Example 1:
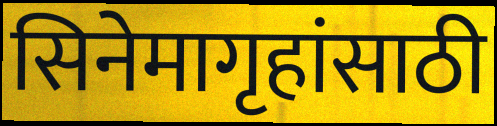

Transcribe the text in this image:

सिनेमागृहांसाठी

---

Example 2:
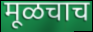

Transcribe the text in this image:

मूळचाच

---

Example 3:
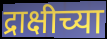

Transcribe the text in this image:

द्राक्षीच्या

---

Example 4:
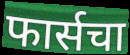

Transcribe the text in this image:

फार्सचा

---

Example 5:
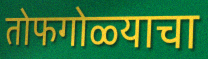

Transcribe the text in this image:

तोफगोळ्याचा